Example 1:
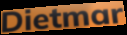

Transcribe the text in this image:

Dietmar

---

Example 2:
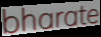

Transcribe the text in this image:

bharate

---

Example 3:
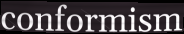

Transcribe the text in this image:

conformism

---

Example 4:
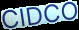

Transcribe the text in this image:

CIDCO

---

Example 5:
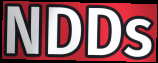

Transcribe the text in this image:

NDDs